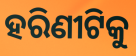
ହରିଣୀଟିକୁ